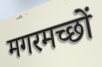
मगरमच्छों